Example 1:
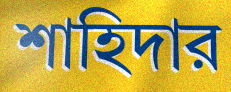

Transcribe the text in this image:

শাহিদার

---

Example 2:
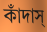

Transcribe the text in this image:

কাঁদাস্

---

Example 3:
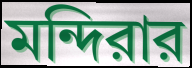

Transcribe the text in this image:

মন্দিরার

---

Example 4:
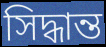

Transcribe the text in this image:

সিদ্ধান্ত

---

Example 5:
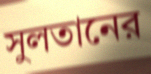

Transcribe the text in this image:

সুলতানের